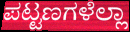
ಪಟ್ಟಣಗಳೆಲ್ಲಾ